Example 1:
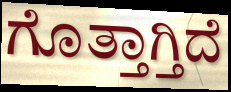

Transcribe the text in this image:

ಗೊತ್ತಾಗ್ತಿದೆ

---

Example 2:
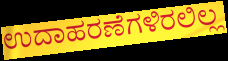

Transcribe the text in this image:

ಉದಾಹರಣೆಗಳಿರಲಿಲ್ಲ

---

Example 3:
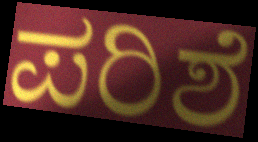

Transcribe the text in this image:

ಪರಿಶೆ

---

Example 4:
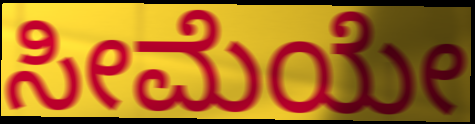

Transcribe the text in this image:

ಸೀಮೆಯೇ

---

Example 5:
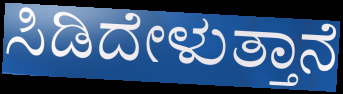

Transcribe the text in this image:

ಸಿಡಿದೇಳುತ್ತಾನೆ